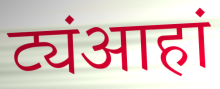
ट्यंआहां